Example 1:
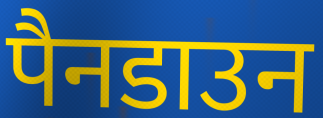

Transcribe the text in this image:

पैनडाउन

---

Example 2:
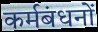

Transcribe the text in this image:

कर्मबंधनों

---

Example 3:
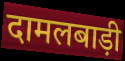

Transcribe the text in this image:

दामलबाड़ी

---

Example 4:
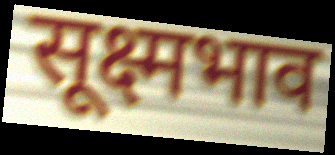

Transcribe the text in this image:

सूक्ष्मभाव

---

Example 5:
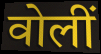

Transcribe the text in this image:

वोलीं